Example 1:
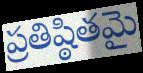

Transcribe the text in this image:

ప్రతిష్ఠితమై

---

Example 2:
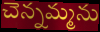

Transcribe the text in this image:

చెన్నమ్మను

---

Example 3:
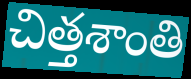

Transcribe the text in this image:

చిత్తశాంతి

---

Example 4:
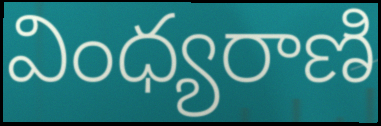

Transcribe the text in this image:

వింధ్యరాణి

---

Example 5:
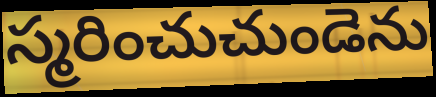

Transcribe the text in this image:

స్మరించుచుండెను